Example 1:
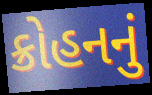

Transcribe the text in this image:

ક્રોહનનું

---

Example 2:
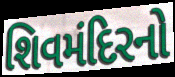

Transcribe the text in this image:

શિવમંદિરનો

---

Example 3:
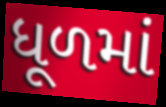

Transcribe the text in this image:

ધૂળમાં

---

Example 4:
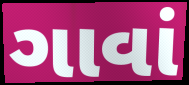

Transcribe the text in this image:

ગાવાં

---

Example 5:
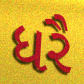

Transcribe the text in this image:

ધરૈ